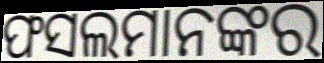
ଫସଲମାନଙ୍କର